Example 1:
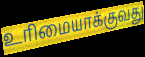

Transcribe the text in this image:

உரிமையாக்குவது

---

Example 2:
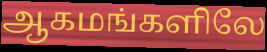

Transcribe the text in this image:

ஆகமங்களிலே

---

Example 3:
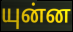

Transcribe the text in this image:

யுன்ன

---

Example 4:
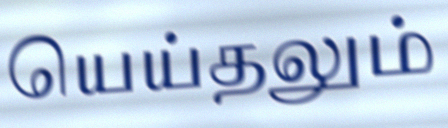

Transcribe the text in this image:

யெய்தலும்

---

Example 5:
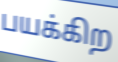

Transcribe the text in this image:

பயக்கிற